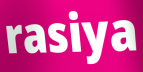
rasiya